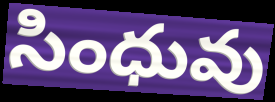
సింధువు